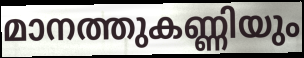
മാനത്തുകണ്ണിയും